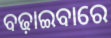
ବଢ଼ାଇବାରେ